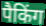
पैकिंग